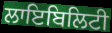
ਲਾਇਬਿਲਿਟੀ